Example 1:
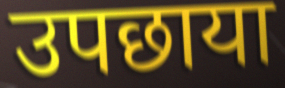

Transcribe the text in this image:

उपछाया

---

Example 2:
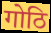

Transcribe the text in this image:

गोठि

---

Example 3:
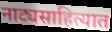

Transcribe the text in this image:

नाट्यसाहित्यात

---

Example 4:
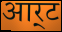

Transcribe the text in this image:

आर्ट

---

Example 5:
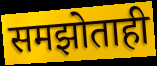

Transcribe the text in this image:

समझोताही